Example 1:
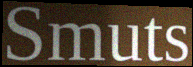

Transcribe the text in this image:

Smuts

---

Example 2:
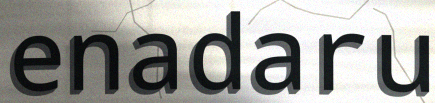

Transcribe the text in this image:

enadaru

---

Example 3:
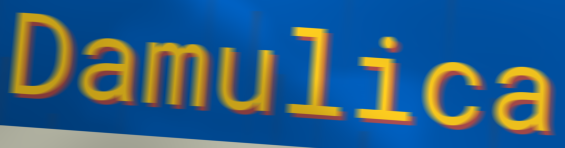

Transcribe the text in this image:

Damulica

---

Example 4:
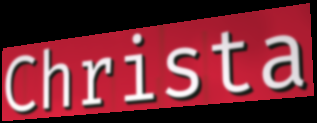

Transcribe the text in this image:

Christa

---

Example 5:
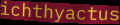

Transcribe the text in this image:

ichthyactus